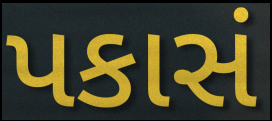
પકાસં